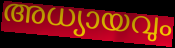
അധ്യായവും